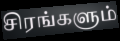
சிரங்களும்